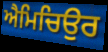
ਐਮਿਚਿਉਰ